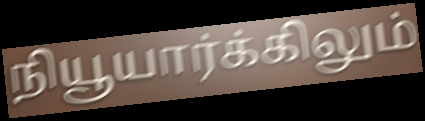
நியூயார்க்கிலும்